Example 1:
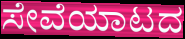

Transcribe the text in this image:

ಸೇವೆಯಾಟದ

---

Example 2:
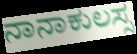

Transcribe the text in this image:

ನಾನಾಕುಲಸ್ಸ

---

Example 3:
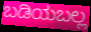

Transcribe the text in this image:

ಬಡಿಯಬಲ್ಲ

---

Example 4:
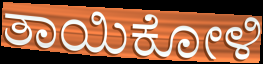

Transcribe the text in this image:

ತಾಯಿಕೋಳಿ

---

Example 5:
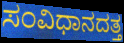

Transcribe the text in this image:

ಸಂವಿಧಾನದತ್ತ